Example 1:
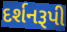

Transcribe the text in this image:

દર્શનરૂપી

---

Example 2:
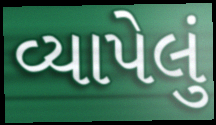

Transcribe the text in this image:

વ્યાપેલું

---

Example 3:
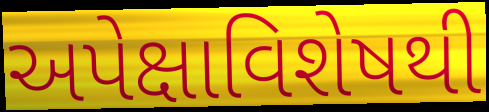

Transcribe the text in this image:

અપેક્ષાવિશેષથી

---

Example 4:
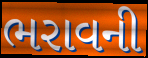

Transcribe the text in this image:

ભરાવની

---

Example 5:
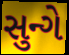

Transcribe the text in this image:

સુન્ગે